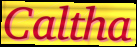
Caltha